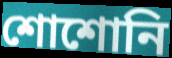
শোশোনি